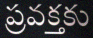
ప్రవక్తకు